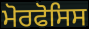
ਮੋਰਫੋਸਿਸ